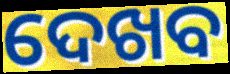
ଦେଖବ